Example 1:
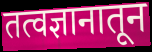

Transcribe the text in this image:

तत्वज्ञानातून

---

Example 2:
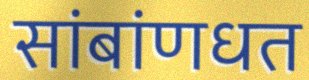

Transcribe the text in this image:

सांबांणधत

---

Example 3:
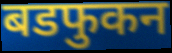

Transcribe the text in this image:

बडफुकन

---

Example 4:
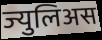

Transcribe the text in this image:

ज्युलिअस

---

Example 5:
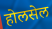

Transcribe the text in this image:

होलसेल